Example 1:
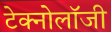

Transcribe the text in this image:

टेक्‍नोलॉजी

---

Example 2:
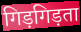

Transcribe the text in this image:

गिड़गिड़ता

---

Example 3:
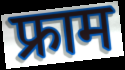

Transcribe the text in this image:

फ्राम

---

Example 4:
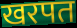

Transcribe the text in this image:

खरपत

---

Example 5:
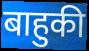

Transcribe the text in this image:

बाहुकी